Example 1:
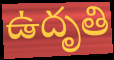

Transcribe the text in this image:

ఉదృతి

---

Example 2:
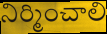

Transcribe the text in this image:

నిర్మించాలి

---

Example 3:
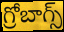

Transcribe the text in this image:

గ్రోబాగ్స్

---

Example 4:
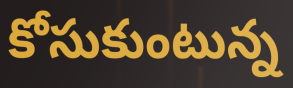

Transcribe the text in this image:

కోసుకుంటున్న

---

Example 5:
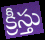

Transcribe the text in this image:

క్రీస్తు